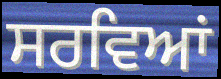
ਸਰਵਿਆਂ